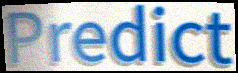
Predict